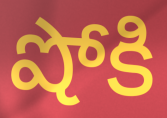
షోకి